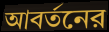
আবর্তনের